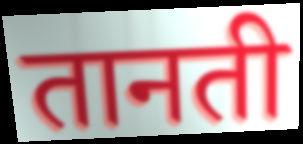
तानती